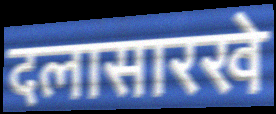
दलासारखे